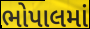
ભોપાલમાં